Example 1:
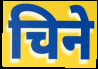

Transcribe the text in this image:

चिने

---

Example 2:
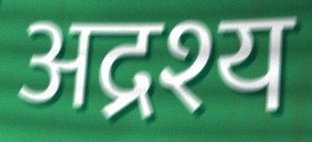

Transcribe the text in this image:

अद्रश्य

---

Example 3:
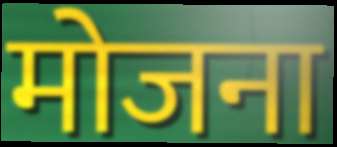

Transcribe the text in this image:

मोजना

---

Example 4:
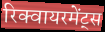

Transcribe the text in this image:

रिक्वायरमेंट्स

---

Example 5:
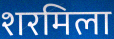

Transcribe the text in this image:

शरमिला